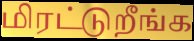
மிரட்டுறீங்க